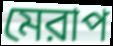
মেরাপ